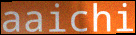
aaichi